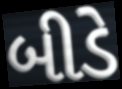
બીડે